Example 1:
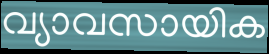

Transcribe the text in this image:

വ്യാവസായിക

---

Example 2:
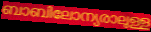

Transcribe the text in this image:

ബാബിലോന്യരാലുള്ള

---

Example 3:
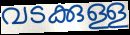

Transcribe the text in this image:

വടക്കുള്ള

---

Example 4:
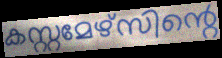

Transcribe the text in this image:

കസ്റ്റമേഴ്സിന്റെ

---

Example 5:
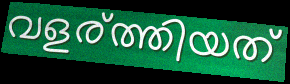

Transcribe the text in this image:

വളര്ത്തിയത്